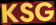
KSG